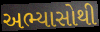
અભ્યાસોથી